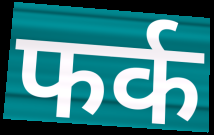
फर्क